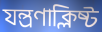
যন্ত্রণাক্লিষ্ট